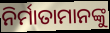
ନିର୍ମାତାମାନଙ୍କୁ